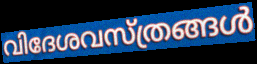
വിദേശവസ്ത്രങ്ങൾ